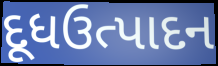
દૂધઉત્પાદન